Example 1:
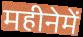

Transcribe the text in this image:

महीनेमें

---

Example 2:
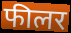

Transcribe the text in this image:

फीलर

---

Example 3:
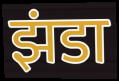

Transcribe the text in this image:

झंडा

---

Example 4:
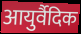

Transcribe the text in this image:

आयुर्वैदिक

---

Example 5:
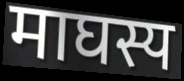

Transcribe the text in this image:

माघस्य